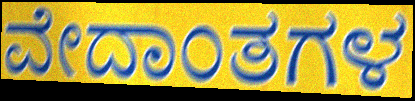
ವೇದಾಂತಗಳ